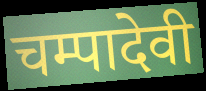
चम्पादेवी